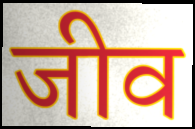
जीव